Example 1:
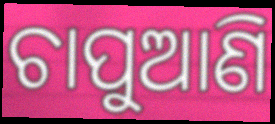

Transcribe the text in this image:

ଚାପୁଆଣି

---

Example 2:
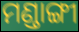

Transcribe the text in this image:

ମଣ୍ଡାଙ୍ଗୀ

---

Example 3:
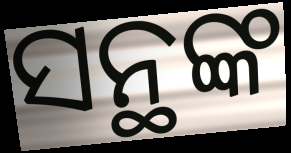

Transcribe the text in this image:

ସନ୍ଥଙ୍କ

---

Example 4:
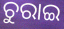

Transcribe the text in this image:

ଚୁରାଇ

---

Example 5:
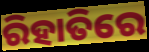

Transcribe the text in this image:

ରିହାତିରେ